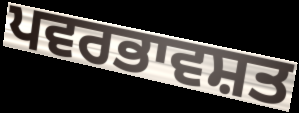
ਪਵਰਭਾਵਸ਼ਤ